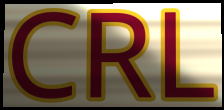
CRL